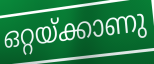
ഒറ്റയ്ക്കാണു